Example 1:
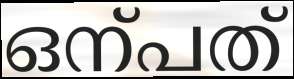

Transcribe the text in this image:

ഒന്പത്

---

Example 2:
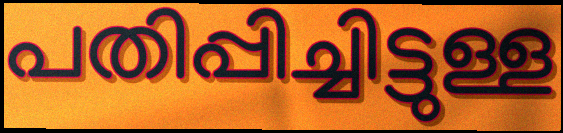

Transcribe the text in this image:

പതിപ്പിച്ചിട്ടുള്ള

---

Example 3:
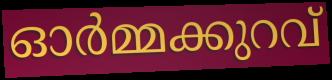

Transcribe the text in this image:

ഓർമ്മക്കുറവ്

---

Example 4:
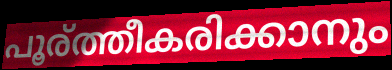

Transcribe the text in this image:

പൂര്ത്തീകരിക്കാനും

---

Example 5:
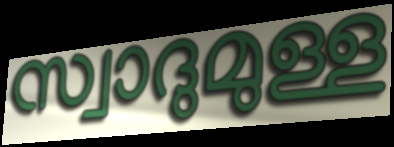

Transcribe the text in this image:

സ്വാദുമുള്ള